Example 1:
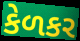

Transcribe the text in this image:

કેળકર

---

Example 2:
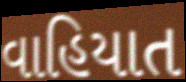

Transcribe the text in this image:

વાહિયાત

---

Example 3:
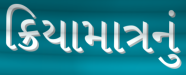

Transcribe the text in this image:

ક્રિયામાત્રનું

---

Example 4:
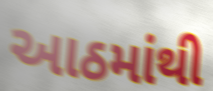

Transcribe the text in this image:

આઠમાંથી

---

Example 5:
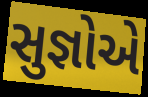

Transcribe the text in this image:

સુજ્ઞોએ